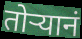
तोऱ्यानं